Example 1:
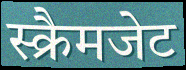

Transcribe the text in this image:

स्‍क्रैमजेट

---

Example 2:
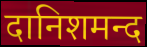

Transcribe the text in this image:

दानिशमन्द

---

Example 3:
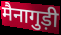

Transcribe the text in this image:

मैनागुड़ी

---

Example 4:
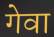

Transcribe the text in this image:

गेवा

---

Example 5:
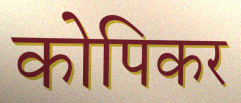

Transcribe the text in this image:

कोपिकर